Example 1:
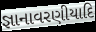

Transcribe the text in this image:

જ્ઞાનાવરણીયાદિ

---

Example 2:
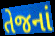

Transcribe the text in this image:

તેજનાં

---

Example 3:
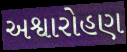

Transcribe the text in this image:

અશ્વારોહણ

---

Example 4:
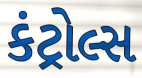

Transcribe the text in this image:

કંટ્રોલ્સ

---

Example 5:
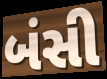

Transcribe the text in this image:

બંસી